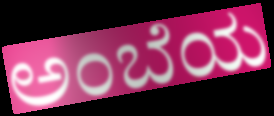
ಅಂಬೆಯ